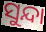
ସୁନ୍ଦା